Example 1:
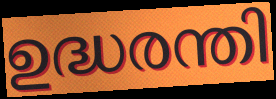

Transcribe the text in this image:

ഉദ്ധരന്തി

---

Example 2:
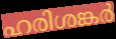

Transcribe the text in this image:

ഹരിശങ്കർ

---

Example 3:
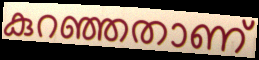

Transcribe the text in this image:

കുറഞ്ഞതാണ്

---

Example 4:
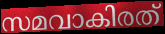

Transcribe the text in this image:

സമവാകിരത്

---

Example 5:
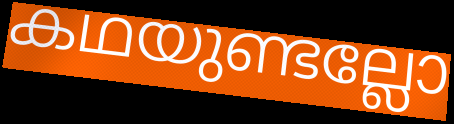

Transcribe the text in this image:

കഥയുണ്ടല്ലോ